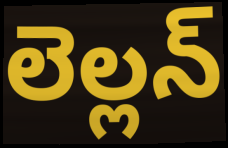
లెల్లన్